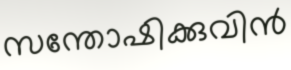
സന്തോഷിക്കുവിൻ